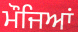
ਮੌਜਿਆਂ